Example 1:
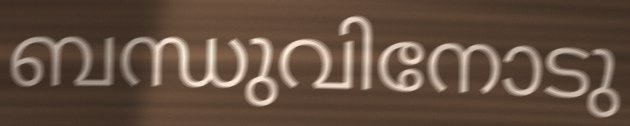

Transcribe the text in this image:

ബന്ധുവിനോടു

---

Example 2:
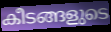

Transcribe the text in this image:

കീടങ്ങളുടെ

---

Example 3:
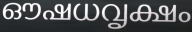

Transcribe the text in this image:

ഔഷധവൃക്ഷം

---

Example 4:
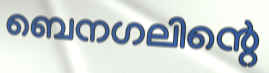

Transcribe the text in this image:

ബെനഗലിന്റെ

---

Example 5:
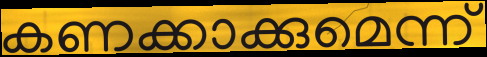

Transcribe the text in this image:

കണക്കാക്കുമെന്ന്